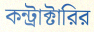
কন্ট্রাক্টারির